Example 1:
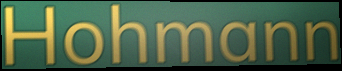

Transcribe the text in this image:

Hohmann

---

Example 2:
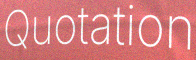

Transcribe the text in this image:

Quotation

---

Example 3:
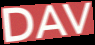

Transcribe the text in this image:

DAV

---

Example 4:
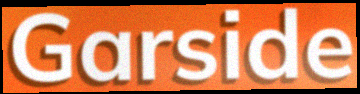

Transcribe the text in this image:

Garside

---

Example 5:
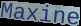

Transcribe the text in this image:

Maxine